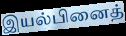
இயல்பினைத்